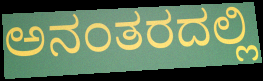
ಅನಂತರದಲ್ಲಿ